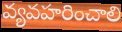
వ్యవహరించాలి